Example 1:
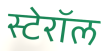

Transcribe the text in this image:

स्टेरॉल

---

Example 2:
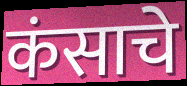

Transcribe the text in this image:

कंसाचे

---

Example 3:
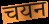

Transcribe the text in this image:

चयन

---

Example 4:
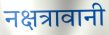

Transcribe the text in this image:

नक्षत्रावानी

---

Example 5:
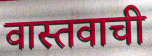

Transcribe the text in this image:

वास्तवाची